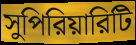
সুপিরিয়ারিটি